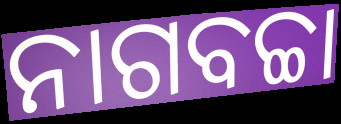
ନାଗବଚ୍ଚା